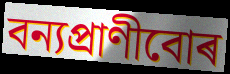
বন্যপ্ৰাণীবোৰ